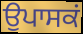
ਉਪਾਸਕਂ